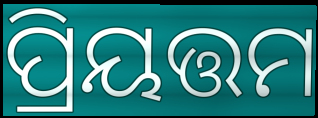
ପ୍ରିୟତ୍ତମ